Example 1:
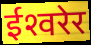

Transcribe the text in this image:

ईश्वरेर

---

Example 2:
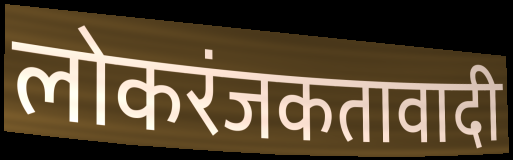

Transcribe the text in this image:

लोकरंजकतावादी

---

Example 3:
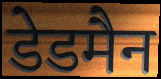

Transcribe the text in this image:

डेडमैन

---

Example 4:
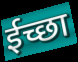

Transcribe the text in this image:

ईच्छा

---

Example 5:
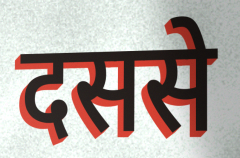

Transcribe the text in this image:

दससे